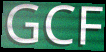
GCF